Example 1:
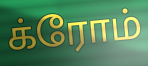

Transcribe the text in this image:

க்ரோம்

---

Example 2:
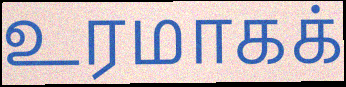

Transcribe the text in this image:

உரமாகக்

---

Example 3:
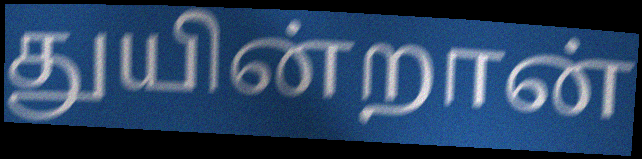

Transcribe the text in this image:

துயின்றான்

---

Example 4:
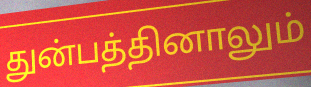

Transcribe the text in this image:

துன்பத்தினாலும்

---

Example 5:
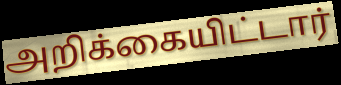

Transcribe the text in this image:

அறிக்கையிட்டார்